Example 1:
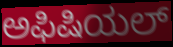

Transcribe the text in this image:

ಅಫಿಷಿಯಲ್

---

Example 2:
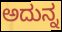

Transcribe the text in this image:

ಅದುನ್ನ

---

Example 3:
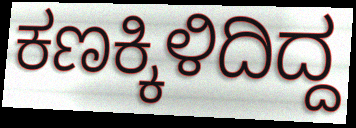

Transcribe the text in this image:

ಕಣಕ್ಕಿಳಿದಿದ್ದ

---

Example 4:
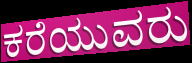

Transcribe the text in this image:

ಕರೆಯುವರು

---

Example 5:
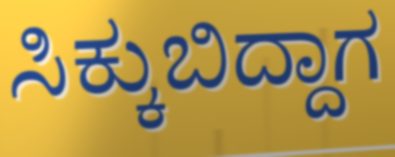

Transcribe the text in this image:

ಸಿಕ್ಕುಬಿದ್ದಾಗ